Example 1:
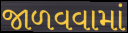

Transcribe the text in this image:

જાળવવામાં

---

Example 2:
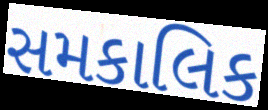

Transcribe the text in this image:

સમકાલિક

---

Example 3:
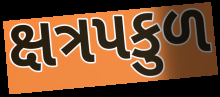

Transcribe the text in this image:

ક્ષત્રપકુળ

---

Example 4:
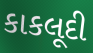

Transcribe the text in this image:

કાકલૂદી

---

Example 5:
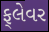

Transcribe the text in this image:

ફ્‌લેવર